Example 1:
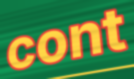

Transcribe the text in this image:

cont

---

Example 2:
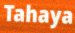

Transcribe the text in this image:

Tahaya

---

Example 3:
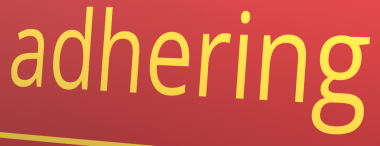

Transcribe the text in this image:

adhering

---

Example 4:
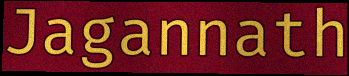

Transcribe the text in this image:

Jagannath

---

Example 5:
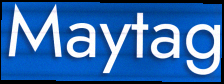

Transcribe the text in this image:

Maytag